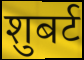
शुबर्ट